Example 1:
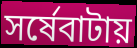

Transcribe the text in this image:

সর্ষেবাটায়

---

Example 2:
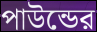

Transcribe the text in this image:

পাউন্ডের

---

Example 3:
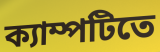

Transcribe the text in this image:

ক্যাম্পটিতে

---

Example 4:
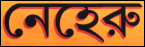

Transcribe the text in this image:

নেহেরু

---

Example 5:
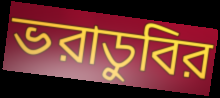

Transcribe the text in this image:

ভরাডুবির